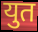
युत